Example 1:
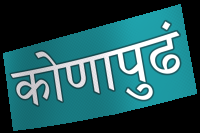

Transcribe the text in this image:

कोणापुढं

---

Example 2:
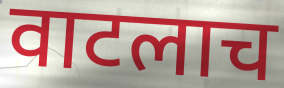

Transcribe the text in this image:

वाटलाच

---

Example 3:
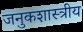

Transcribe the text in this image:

जनुकशास्त्रीय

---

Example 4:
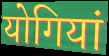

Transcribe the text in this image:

योगियां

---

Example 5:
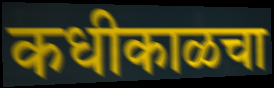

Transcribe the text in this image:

कधीकाळचा